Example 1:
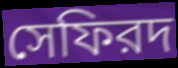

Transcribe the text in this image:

সেফিরদ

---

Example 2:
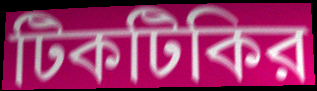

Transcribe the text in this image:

টিকটিকির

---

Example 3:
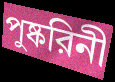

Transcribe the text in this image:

পুষ্করিনী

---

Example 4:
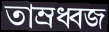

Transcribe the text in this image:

তাম্রধ্বজ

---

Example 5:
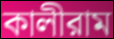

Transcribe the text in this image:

কালীরাম